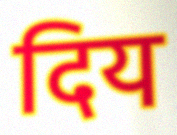
दिय